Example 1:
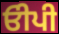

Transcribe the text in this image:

ਓੀਪੀ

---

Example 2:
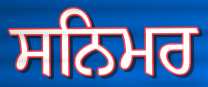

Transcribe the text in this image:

ਸਨਿਮਰ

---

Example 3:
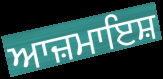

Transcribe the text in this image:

ਆਜ਼ਮਾਇਸ਼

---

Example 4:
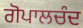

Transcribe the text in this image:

ਗੋਪਾਲਚੰਦ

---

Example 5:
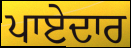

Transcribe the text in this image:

ਪਾਏਦਾਰ